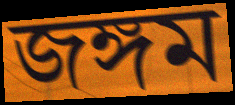
জঙ্গম